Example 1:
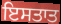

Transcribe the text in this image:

ਇਸਤਾਤ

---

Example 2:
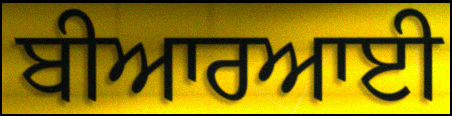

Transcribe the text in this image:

ਬੀਆਰਆਈ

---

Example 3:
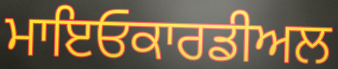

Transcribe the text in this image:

ਮਾਇਓਕਾਰਡੀਅਲ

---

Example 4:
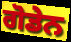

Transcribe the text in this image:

ਗੋਡੇਨ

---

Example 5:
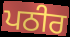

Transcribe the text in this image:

ਪਠੀਰ